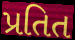
પ્રતિત